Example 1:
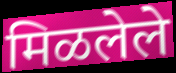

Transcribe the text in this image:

मिळलेले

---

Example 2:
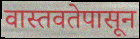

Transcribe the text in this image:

वास्तवतेपासून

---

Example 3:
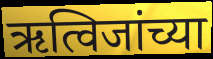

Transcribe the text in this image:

ऋत्विजांच्या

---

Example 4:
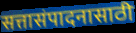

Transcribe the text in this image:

सत्तासंपादनासाठी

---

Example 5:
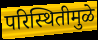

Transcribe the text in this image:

परिस्थितीमुळे